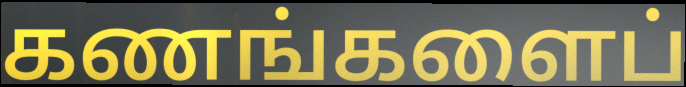
கணங்களைப்